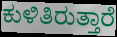
ಕುಳಿತಿರುತ್ತಾರೆ